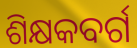
ଶିକ୍ଷକବର୍ଗ